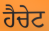
ਹੈਚੇਟ